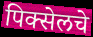
पिक्सेलचे